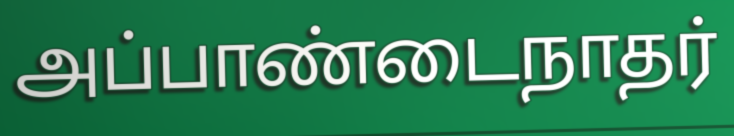
அப்பாண்டைநாதர்